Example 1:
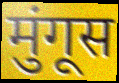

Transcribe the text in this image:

मुंगूस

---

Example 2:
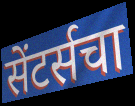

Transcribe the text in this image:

सेंटर्सचा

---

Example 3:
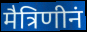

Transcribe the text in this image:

मैत्रिणीनं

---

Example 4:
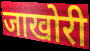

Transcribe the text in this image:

जाखोरी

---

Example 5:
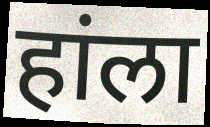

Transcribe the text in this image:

हांला